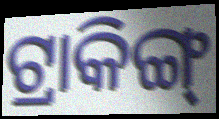
ଟ୍ରାକିଙ୍ଗ୍